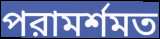
পরামর্শমত